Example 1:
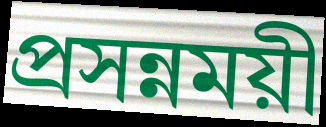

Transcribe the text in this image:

প্রসন্নময়ী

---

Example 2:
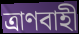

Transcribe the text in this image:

ত্রাণবাহী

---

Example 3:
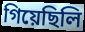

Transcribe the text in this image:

গিয়েছিলি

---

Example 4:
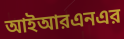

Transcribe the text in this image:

আইআরএনএর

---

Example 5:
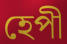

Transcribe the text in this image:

হেপী